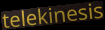
telekinesis